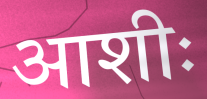
आशीः